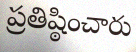
ప్రతిష్ఠించారు